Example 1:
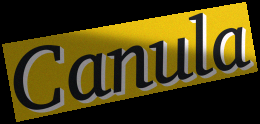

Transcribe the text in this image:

Canula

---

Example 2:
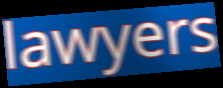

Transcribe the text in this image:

lawyers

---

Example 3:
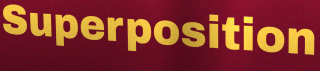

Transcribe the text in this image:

Superposition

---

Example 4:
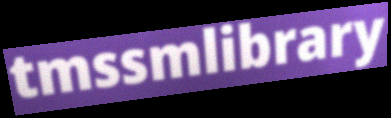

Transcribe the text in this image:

tmssmlibrary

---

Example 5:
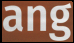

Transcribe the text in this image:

ang